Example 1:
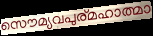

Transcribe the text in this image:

സൌമ്യവപുര്മഹാത്മാ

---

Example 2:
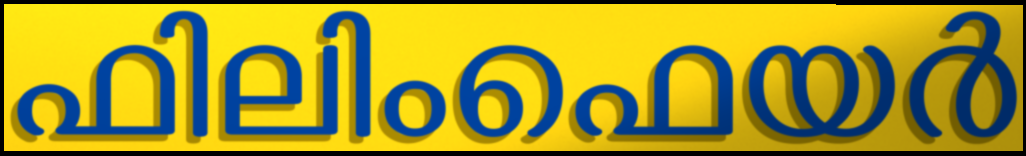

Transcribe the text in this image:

ഫിലിംഫെയർ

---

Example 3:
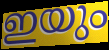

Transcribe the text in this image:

ഇയും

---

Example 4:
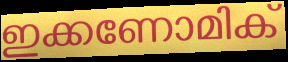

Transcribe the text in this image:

ഇക്കണോമിക്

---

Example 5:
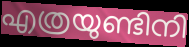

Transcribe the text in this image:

എത്രയുണ്ടിനി